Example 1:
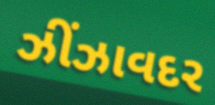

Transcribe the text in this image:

ઝીંઝાવદર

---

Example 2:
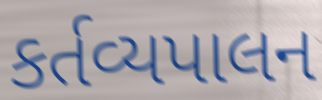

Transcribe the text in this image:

કર્તવ્યપાલન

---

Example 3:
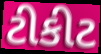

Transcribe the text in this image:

ટીકીટ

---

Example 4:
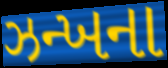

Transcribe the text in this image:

ઝન્ખના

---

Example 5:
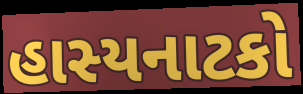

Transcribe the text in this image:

હાસ્યનાટકો